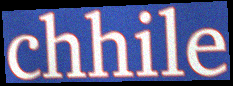
chhile